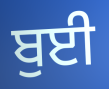
ਬੁਈ